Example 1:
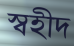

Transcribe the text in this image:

স্বহীদ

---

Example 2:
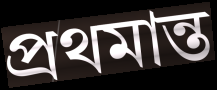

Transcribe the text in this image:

প্ৰথমান্ত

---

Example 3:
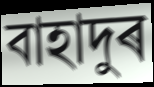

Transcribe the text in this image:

বাহাদুৰ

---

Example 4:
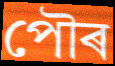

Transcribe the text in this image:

পৌৰ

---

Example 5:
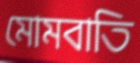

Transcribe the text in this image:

মোমবাতি